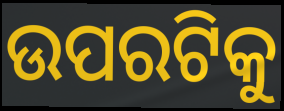
ଉପରଟିକୁ